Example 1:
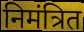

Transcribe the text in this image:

निमंत्रित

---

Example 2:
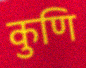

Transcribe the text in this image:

कुणि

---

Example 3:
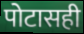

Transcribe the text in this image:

पोटासही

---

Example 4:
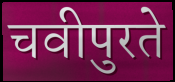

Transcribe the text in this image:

चवीपुरते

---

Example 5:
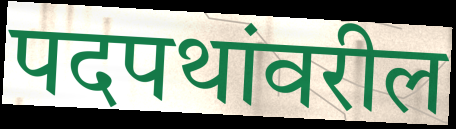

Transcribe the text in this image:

पदपथांवरील